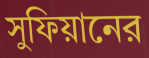
সুফিয়ানের